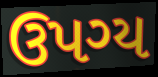
ઉપગ્ય